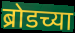
ब्रोडच्या